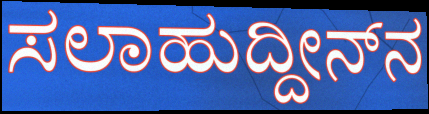
ಸಲಾಹುದ್ದೀನ್‍ನ